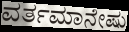
ವರ್ತಮಾನೇಷು